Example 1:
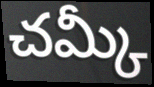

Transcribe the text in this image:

చమ్కీ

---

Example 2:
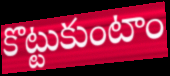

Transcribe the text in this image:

కొట్టుకుంటాం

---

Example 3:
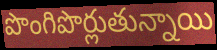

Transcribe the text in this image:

పొంగిపొర్లుతున్నాయి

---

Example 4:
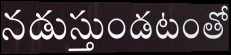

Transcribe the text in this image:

నడుస్తుండటంతో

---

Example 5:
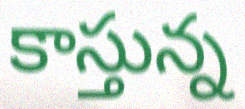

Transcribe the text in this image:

కాస్తున్న